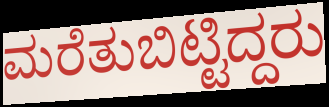
ಮರೆತುಬಿಟ್ಟಿದ್ದರು